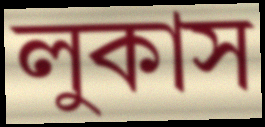
লুকাস